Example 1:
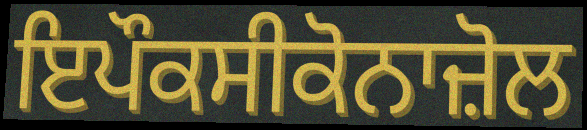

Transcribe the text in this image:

ਇਪੌਕਸੀਕੋਨਾਜ਼ੋਲ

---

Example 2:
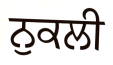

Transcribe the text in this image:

ਨੁਕਲੀ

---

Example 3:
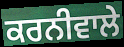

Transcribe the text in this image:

ਕਰਨੀਵਾਲੇ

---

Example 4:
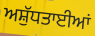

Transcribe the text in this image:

ਅਸ਼ੁੱਧਤਾਈਆਂ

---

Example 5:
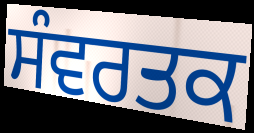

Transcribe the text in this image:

ਸੰਵਰਤਕ